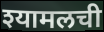
श्यामलची